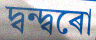
দ্বন্দ্বৰো